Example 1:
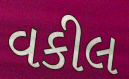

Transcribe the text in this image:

વકીલ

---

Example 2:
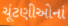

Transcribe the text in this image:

ચૂંટણીઓનાં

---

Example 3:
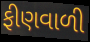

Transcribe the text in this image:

ફીણવાળી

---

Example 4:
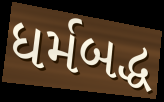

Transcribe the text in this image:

ધર્મબદ્ધ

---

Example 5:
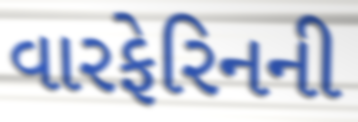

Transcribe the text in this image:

વારફેરિનની